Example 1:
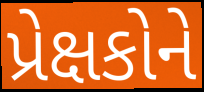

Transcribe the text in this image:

પ્રેક્ષકોને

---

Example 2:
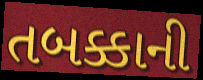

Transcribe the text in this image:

તબક્કાની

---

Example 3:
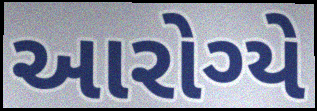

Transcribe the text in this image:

આરોગ્યે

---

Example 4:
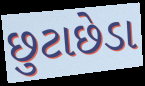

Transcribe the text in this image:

છુટાછેડા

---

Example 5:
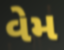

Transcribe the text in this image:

વેમ